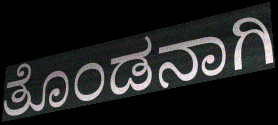
ತೊಂಡನಾಗಿ